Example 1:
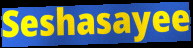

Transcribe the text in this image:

Seshasayee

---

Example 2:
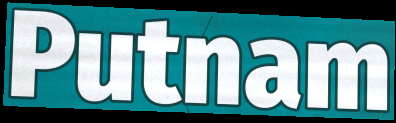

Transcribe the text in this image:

Putnam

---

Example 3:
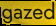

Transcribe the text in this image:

gazed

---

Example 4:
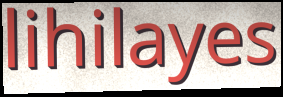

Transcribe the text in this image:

lihilayes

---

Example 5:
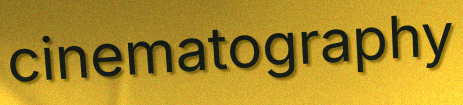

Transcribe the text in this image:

cinematography